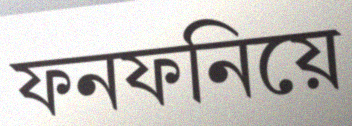
ফনফনিয়ে